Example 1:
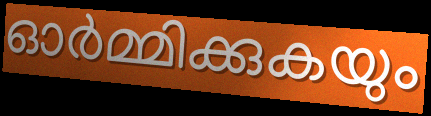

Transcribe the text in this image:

ഓർമ്മിക്കുകയും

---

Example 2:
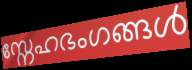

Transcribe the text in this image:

സ്നേഹഭംഗങ്ങൾ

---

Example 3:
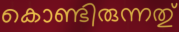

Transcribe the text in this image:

കൊണ്ടിരുന്നതു്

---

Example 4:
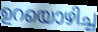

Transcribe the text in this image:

ഉറയൊഴിച്ച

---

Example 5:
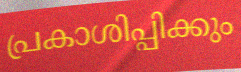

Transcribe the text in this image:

പ്രകാശിപ്പിക്കും